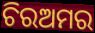
ଚିରଅମର